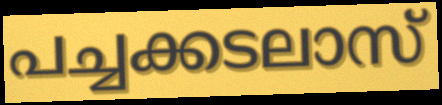
പച്ചക്കടലാസ്